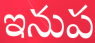
ఇనుప